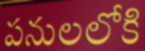
పనులలోకి